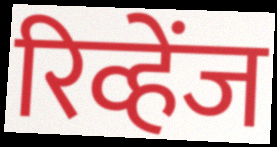
रिव्हेंज